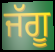
ਜੱਗੂ